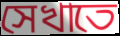
সেখাতে